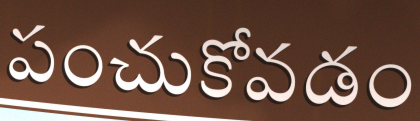
పంచుకోవడం